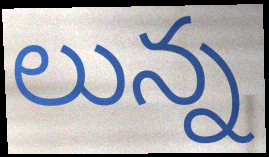
లున్న